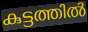
കുട്ടത്തിൽ